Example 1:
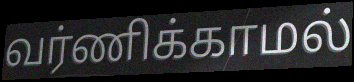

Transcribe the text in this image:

வர்ணிக்காமல்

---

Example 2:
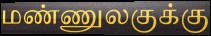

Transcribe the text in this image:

மண்ணுலகுக்கு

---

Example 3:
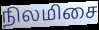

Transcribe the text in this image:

நிலமிசை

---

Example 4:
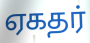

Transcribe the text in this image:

ஏகதர்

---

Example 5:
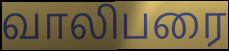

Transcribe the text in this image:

வாலிபரை